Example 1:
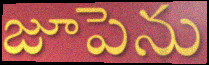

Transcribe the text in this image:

జూపెను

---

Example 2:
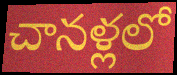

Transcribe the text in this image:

చానళ్లలో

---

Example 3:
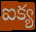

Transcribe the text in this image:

ఐక్య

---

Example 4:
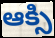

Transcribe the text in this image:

ఆక్సి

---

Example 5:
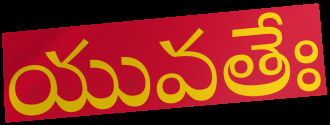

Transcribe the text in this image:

యువతేః